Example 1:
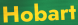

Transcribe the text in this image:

Hobart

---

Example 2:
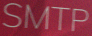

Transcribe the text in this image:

SMTP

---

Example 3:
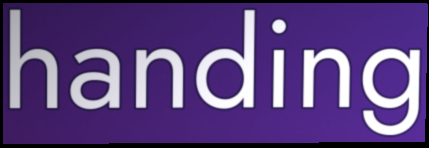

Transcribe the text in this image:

handing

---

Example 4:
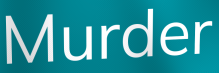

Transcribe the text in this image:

Murder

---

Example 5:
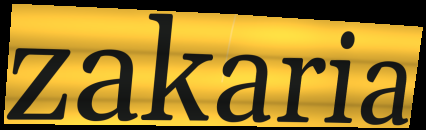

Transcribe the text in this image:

zakaria